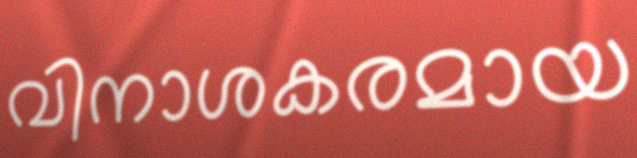
വിനാശകരമായ